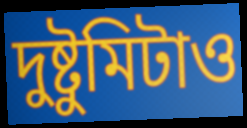
দুষ্টুমিটাও